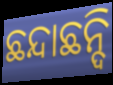
ଛନ୍ଦାଛନ୍ଦି